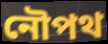
নৌপথ